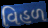
વિહળ